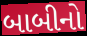
બાબીનો